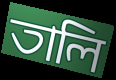
তালি